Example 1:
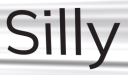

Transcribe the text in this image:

Silly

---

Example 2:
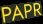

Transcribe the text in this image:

PAPR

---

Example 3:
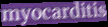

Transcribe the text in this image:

myocarditis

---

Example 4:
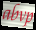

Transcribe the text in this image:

abvp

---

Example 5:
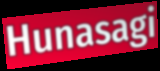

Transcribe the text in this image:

Hunasagi